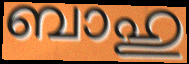
ബാഹു